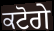
ਕਟੋਗੇ